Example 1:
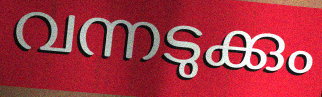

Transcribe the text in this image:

വന്നടുക്കും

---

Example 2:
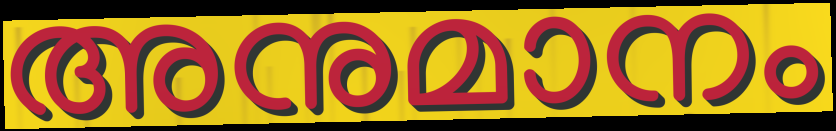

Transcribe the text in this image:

അനുമാനം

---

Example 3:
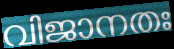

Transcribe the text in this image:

വിജാനതഃ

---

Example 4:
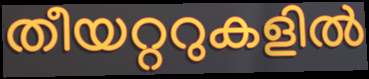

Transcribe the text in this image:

തീയറ്ററുകളിൽ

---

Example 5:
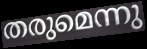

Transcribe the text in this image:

തരുമെന്നു